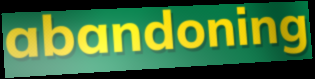
abandoning